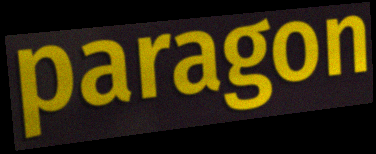
paragon